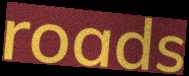
roads